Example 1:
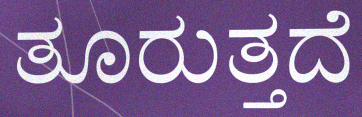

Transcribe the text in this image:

ತೂರುತ್ತದೆ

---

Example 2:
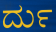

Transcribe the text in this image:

ರ್ದು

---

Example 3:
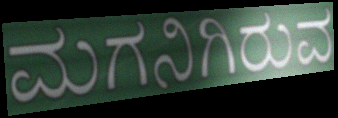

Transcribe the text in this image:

ಮಗನಿಗಿರುವ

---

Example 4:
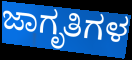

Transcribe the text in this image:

ಜಾಗೃತಿಗಳ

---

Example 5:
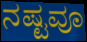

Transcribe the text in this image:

ನಷ್ಟವೂ